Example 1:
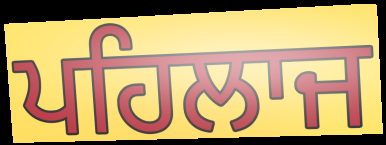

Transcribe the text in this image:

ਪਹਿਲਾਜ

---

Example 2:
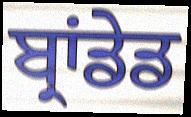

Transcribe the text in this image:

ਬ੍ਰਾਂਡੇਡ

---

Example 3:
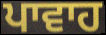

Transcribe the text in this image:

ਪਾਵਾਹ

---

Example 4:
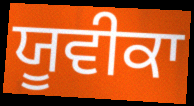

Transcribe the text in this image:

ਯੂਵੀਕਾ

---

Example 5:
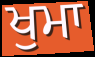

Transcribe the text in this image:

ਖੁਮਾ